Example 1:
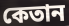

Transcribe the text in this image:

কেতান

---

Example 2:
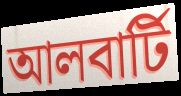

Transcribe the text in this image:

আলবার্টি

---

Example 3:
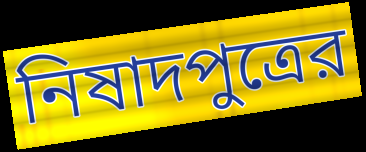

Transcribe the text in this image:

নিষাদপুত্রের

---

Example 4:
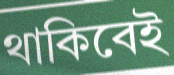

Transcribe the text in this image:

থাকিবেই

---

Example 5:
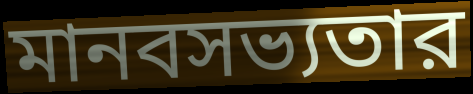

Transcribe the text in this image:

মানবসভ্যতার